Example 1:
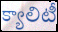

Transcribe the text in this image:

క్యాలిటీ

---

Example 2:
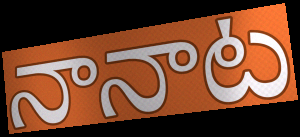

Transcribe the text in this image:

నానాట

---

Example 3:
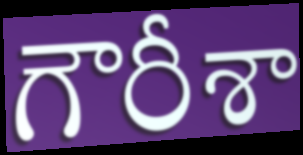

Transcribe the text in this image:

గౌరీశా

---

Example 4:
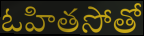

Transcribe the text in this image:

ఓహితసోతో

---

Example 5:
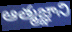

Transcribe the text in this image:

ఆత్మజ్ఞాని